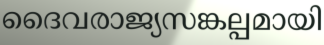
ദൈവരാജ്യസങ്കല്പമായി